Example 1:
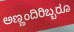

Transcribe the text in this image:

ಅಣ್ಣಂದಿರಿಬ್ಬರೂ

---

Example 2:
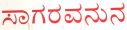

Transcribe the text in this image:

ಸಾಗರವನುನ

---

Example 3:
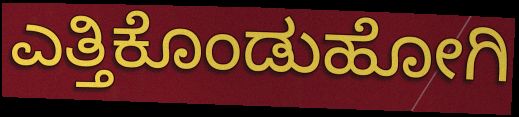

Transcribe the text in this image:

ಎತ್ತಿಕೊಂಡುಹೋಗಿ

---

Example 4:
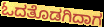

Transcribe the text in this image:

ಓದತೊಡಗಿದಾಗ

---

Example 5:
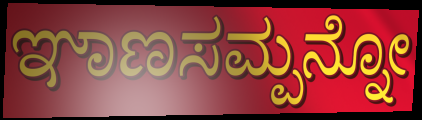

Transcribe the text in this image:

ಞಾಣಸಮ್ಪನ್ನೋ